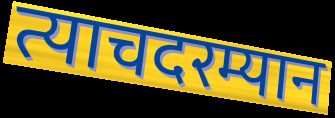
त्याचदरम्यान